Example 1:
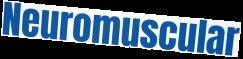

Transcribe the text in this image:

Neuromuscular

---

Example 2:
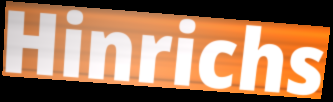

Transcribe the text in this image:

Hinrichs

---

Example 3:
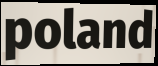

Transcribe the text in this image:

poland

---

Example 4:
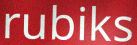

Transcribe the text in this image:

rubiks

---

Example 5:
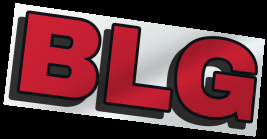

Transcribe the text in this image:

BLG